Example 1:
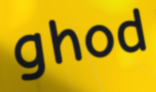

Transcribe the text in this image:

ghod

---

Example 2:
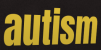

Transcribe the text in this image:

autism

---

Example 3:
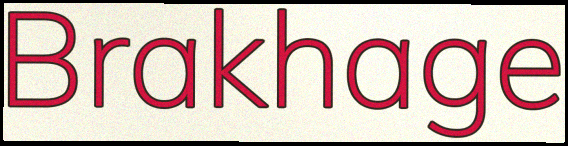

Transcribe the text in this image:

Brakhage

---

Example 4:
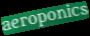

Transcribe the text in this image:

aeroponics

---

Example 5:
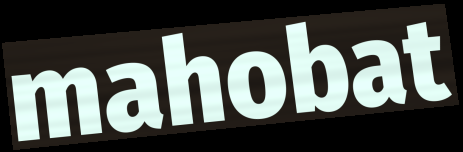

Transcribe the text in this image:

mahobat